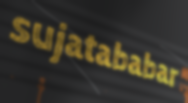
sujatababar